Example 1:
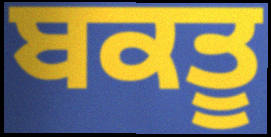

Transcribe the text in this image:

ਬਕਤੂ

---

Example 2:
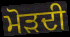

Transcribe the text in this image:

ਮੋੜਦੀ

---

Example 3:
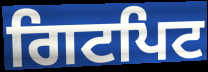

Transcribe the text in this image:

ਗਿਟਪਿਟ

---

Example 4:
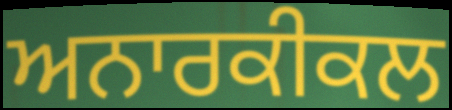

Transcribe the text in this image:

ਅਨਾਰਕੀਕਲ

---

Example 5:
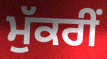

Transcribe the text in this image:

ਮੁੱਕਰੀਂ